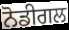
ਨੋਡੀਗਲ